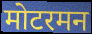
मोटरमन